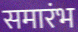
समारंभ